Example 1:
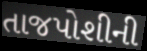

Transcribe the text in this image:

તાજપોશીની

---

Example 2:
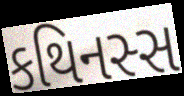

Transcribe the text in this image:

કથિનસ્સ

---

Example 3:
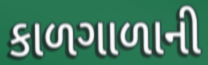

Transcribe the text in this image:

કાળગાળાની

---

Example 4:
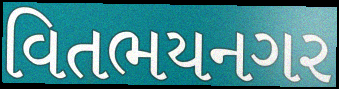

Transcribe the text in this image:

વિતભયનગર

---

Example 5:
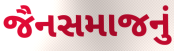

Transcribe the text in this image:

જૈનસમાજનું